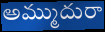
అమ్ముదురా